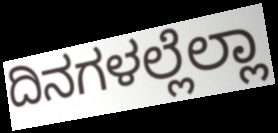
ದಿನಗಳಲ್ಲೆಲ್ಲಾ